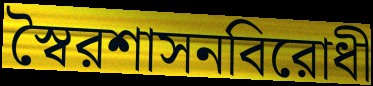
স্বৈরশাসনবিরোধী